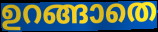
ഉറങ്ങാതെ